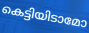
കെട്ടിയിടാമോ